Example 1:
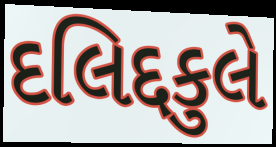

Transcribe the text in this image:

દલિદ્દકુલે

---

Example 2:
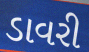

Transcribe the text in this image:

ડાવરી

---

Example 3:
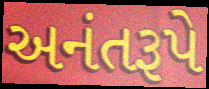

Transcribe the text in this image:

અનંતરૂપે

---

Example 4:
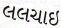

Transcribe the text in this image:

લલચાઇ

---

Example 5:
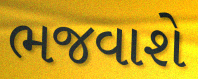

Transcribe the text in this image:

ભજવાશે